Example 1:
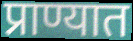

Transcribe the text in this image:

प्राण्यात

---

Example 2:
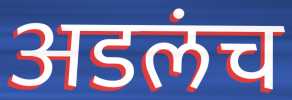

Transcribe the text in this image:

अडलंच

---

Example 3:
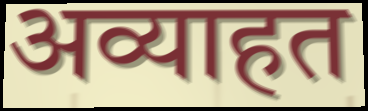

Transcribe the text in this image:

अव्याहत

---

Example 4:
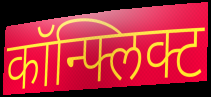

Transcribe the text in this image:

कॉन्फ्लिक्ट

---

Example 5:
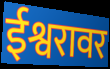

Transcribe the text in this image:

ईश्वरावर